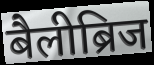
बैलीब्रिज